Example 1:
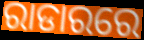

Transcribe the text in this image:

ରାଡାରରେ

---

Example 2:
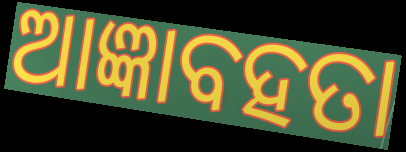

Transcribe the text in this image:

ଆଜ୍ଞାବହତା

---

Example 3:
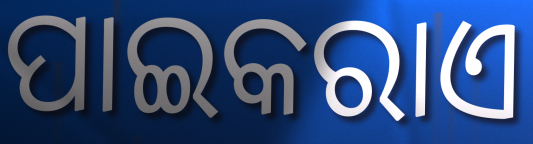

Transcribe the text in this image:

ପାଇକରାଏ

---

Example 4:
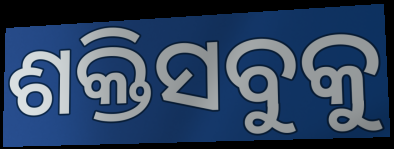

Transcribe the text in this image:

ଶକ୍ତିସବୁକୁ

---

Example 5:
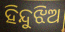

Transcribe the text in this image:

ହିନ୍ଦୁଝିଅ